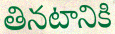
తినటానికి